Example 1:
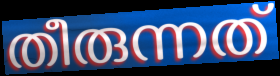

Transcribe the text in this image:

തീരുന്നത്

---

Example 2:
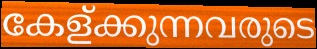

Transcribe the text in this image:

കേള്ക്കുന്നവരുടെ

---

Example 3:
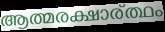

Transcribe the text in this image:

ആത്മരക്ഷാര്ത്ഥം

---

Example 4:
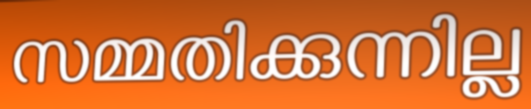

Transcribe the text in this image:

സമ്മതിക്കുന്നില്ല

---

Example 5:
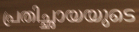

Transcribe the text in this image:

പ്രതിച്ഛായയുടെ